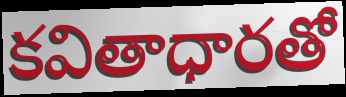
కవితాధారతో